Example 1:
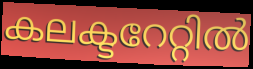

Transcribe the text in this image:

കലക്ടറേറ്റിൽ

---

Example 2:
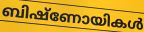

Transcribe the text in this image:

ബിഷ്ണോയികൾ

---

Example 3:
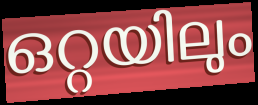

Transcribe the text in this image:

ഒറ്റയിലും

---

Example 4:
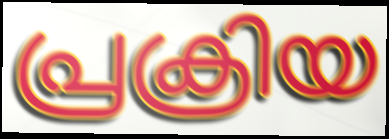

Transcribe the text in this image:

പ്രക്രിയ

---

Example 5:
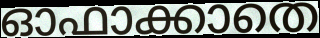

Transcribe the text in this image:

ഓഫാക്കാതെ